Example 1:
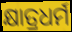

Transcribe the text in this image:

କ୍ଷାତ୍ରଧର୍ମ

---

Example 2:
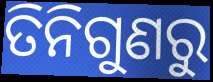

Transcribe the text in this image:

ତିନିଗୁଣରୁ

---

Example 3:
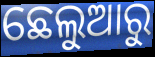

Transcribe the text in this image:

ଛେଲୁଆରୁ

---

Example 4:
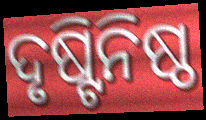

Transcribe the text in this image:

ଦୃଷ୍ଟିନିଷ୍ଠ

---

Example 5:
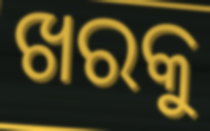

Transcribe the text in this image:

ଖରକୁ